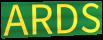
ARDS